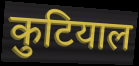
कुटियाल